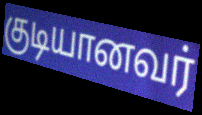
குடியானவர்